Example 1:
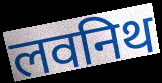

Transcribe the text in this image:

लवनिथ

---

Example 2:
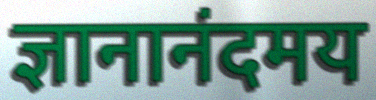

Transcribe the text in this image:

ज्ञानानंदमय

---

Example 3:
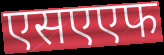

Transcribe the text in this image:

एसएएफ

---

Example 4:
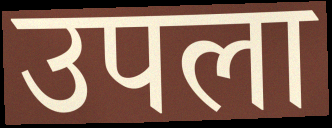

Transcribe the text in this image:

उपला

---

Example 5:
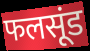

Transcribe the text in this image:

फलसूंड